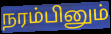
நரம்பினும்